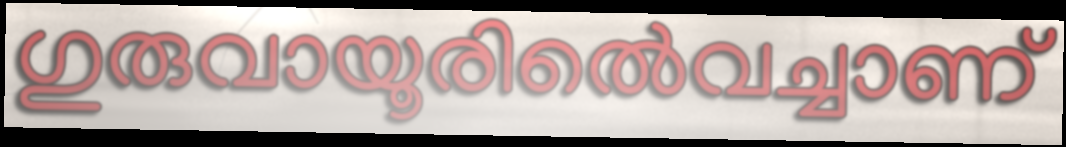
ഗുരുവായൂരിൽെവച്ചാണ്